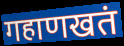
गहाणखतं